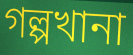
গল্পখানা